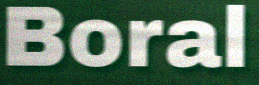
Boral